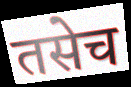
तसेच